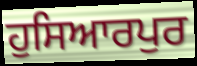
ਹੁਸਿਆਰਪੁਰ